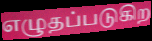
எழுதப்படுகிற